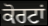
ਕੋਰਟਾਂ